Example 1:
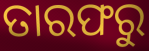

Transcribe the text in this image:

ତାରଫରୁ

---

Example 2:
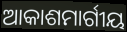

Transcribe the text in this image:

ଆକାଶମାର୍ଗୀୟ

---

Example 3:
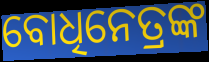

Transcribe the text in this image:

ବୋଧିନେତ୍ରଙ୍କ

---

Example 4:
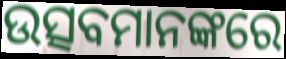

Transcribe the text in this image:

ଉତ୍ସବମାନଙ୍କରେ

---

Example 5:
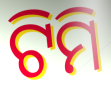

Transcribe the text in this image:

ଟିମି